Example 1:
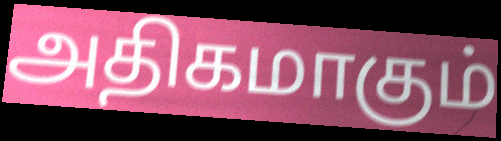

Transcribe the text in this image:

அதிகமாகும்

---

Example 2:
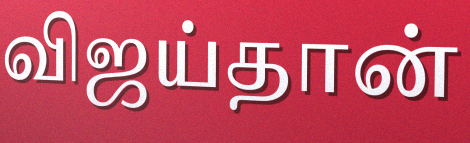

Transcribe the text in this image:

விஜய்தான்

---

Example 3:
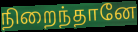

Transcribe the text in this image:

நிறைந்தானே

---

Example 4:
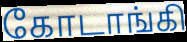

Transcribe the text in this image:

கோடாங்கி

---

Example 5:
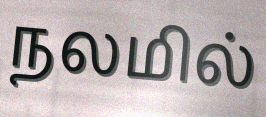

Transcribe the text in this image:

நலமில்